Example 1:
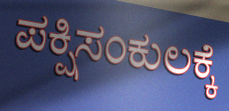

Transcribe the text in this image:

ಪಕ್ಷಿಸಂಕುಲಕ್ಕೆ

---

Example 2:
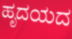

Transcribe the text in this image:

ಹೃದಯದ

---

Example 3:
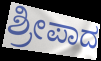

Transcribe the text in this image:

ಶ್ರೀಪಾದ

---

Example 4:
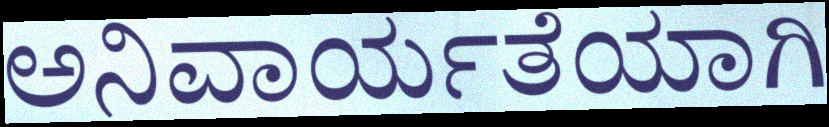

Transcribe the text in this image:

ಅನಿವಾರ್ಯತೆಯಾಗಿ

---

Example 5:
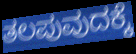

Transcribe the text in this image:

ತಲಪುವುದಕ್ಕೆ